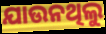
ଯାଉନଥିଲୁ